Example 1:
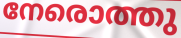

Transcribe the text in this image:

നേരൊത്തു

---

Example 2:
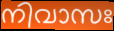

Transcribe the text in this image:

നിവാസഃ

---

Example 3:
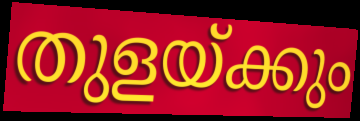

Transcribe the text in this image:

തുളയ്ക്കും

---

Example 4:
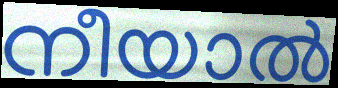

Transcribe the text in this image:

നീയാൽ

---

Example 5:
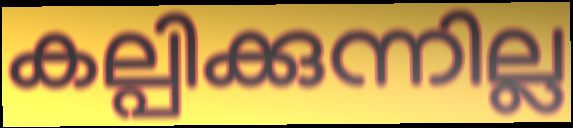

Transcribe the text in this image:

കല്പിക്കുന്നില്ല